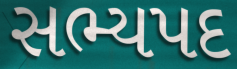
સભ્યપદ